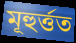
মূহুৰ্ত্তত